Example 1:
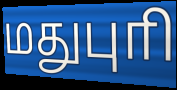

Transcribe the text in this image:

மதுபுரி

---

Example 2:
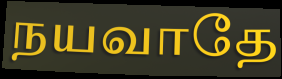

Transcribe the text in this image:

நயவாதே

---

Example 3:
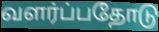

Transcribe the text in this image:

வளர்ப்பதோடு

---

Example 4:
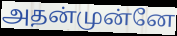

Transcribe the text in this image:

அதன்முன்னே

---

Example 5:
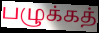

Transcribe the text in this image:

பழுக்கத்